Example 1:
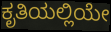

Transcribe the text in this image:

ಕೃತಿಯಲ್ಲಿಯೇ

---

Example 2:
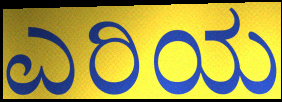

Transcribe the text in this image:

ಎರಿಯ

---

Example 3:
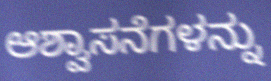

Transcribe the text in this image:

ಆಶ್ವಾಸನೆಗಳನ್ನು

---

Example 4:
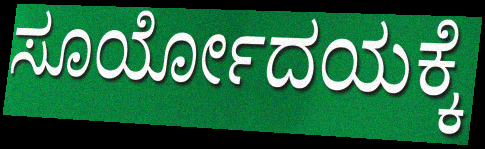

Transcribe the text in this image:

ಸೂರ್ಯೋದಯಕ್ಕೆ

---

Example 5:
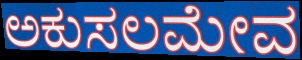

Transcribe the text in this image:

ಅಕುಸಲಮೇವ